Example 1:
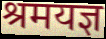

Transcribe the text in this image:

श्रमयज्ञ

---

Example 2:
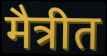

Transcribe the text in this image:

मैत्रीत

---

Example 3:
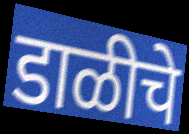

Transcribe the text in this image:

डाळीचे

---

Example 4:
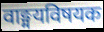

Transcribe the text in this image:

वाङ्मयविषयक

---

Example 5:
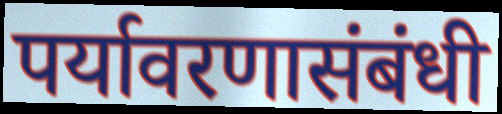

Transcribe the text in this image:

पर्यावरणासंबंधी